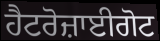
ਹੈਟਰੋਜ਼ਾਈਗੋਟ